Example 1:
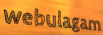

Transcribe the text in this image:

webulagam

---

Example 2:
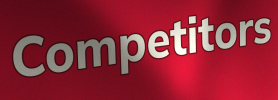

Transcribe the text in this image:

Competitors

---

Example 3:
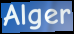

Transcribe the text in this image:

Alger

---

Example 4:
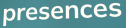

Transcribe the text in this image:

presences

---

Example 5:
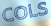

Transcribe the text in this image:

COLS